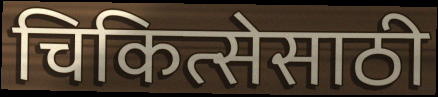
चिकित्सेसाठी